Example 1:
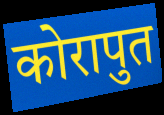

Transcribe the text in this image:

कोरापुत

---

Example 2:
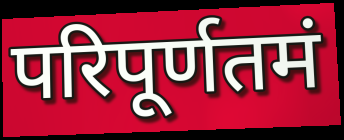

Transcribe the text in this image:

परिपूर्णतमं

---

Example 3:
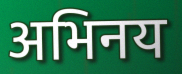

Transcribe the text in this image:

अभिनय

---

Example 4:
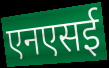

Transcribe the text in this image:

एनएसई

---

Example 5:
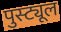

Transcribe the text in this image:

पुस्ट्यूल